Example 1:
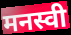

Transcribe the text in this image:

मनस्वी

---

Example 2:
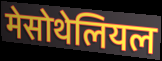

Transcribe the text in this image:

मेसोथेलियल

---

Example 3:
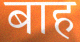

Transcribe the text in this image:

बाह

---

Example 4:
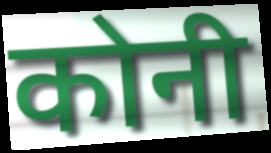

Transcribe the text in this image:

कोनी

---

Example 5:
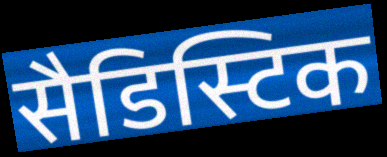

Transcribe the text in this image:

सैडिस्टिक